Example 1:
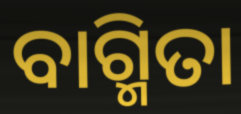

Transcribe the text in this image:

ବାଗ୍ମିତା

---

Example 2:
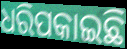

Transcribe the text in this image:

ଧରିପକାଇଛି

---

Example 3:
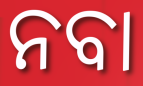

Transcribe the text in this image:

ନବା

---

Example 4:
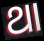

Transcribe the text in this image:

ଥା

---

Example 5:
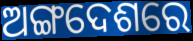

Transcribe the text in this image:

ଅଙ୍ଗଦେଶରେ